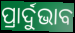
ପ୍ରାର୍ଦୁଭାବ